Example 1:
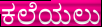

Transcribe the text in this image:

ಕಲೆಯಲು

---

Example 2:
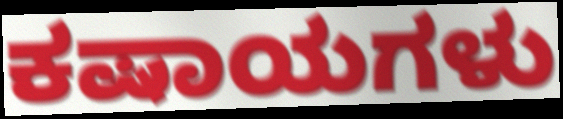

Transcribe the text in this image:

ಕಷಾಯಗಳು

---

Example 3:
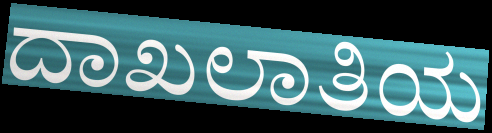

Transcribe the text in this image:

ದಾಖಲಾತಿಯ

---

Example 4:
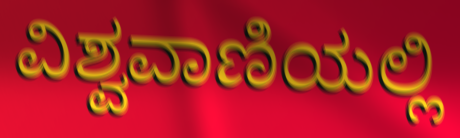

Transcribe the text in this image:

ವಿಶ್ವವಾಣಿಯಲ್ಲಿ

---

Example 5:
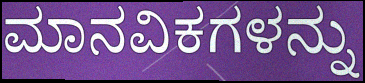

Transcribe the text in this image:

ಮಾನವಿಕಗಳನ್ನು